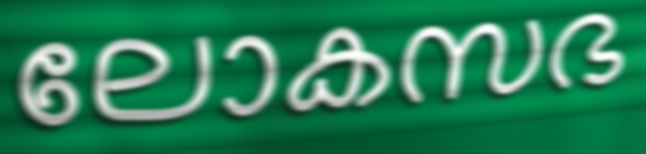
ലോകസഭ